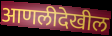
आणलीदेखील